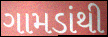
ગામડાંથી